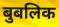
बुबलिक